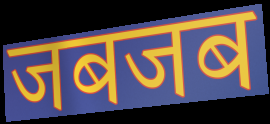
जबजब